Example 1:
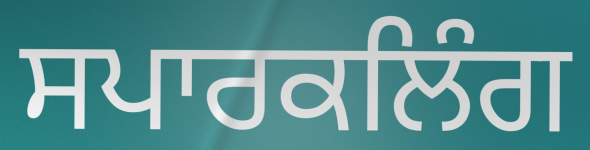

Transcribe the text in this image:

ਸਪਾਰਕਲਿੰਗ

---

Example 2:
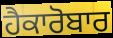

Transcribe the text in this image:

ਹੈਕਾਰੋਬਾਰ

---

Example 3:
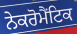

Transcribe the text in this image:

ਨੇਕਰੋਮੈਂਟਿਕ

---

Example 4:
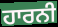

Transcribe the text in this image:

ਹਾਰਨੀ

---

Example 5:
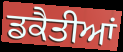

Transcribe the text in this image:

ਡਕੈਤੀਆਂ